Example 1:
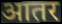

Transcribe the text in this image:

आतर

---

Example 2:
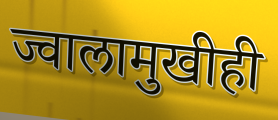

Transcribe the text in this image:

ज्वालामुखीही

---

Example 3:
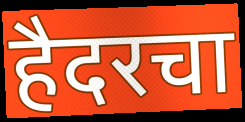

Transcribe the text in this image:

हैदरचा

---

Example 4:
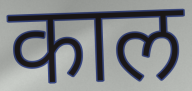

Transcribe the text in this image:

काल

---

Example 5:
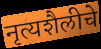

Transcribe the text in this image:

नृत्यशैलीचे